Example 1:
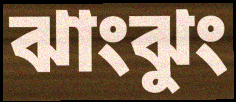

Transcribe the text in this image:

ঝাংঝুং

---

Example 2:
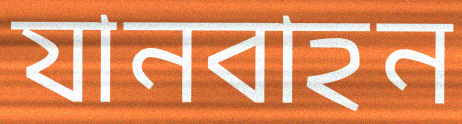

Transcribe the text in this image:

যানবাহন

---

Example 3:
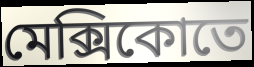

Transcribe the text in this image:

মেক্সিকোতে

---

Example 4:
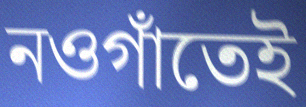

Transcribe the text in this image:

নওগাঁতেই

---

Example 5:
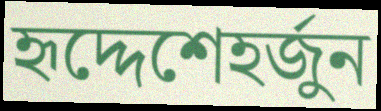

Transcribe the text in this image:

হৃদ্দেশেহর্জুন